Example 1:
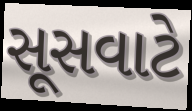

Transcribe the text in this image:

સૂસવાટે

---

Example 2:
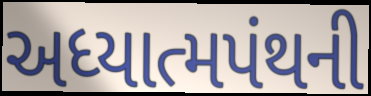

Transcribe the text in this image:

અધ્યાત્મપંથની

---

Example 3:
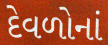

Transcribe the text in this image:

દેવળોનાં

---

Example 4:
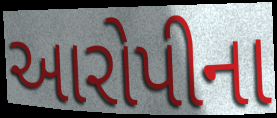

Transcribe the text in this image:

આરોપીના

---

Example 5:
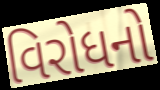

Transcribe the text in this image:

વિરોધનો